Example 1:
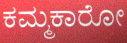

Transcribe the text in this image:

ಕಮ್ಮಕಾರೋ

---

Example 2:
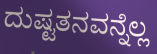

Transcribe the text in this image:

ದುಷ್ಟತನವನ್ನೆಲ್ಲ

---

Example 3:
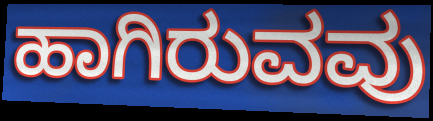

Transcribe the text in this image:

ಹಾಗಿರುವವು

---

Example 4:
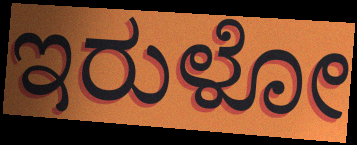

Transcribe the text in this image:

ಇರುಳೋ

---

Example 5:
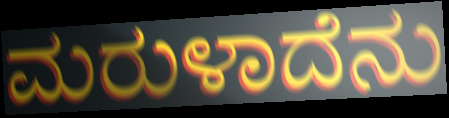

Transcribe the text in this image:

ಮರುಳಾದೆನು